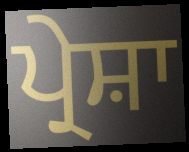
ਪ੍ਰੇਸ਼ਾ